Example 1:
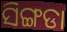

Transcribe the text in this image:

ସିଙ୍ଗଡା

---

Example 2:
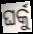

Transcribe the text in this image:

ଘର୍କୁ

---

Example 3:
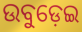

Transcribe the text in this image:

ଉବୁଡ଼େଇ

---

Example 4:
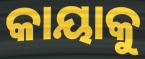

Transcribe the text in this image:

କାୟାକୁ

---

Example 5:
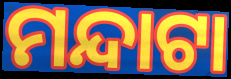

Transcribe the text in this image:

ମନ୍ଦାଟା